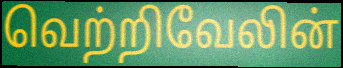
வெற்றிவேலின்